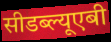
सीडब्ल्यूएबी